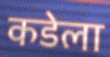
कडेला